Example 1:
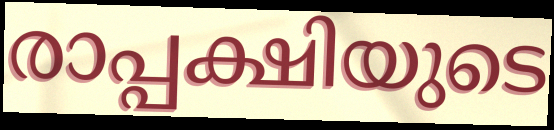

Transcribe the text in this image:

രാപ്പക്ഷിയുടെ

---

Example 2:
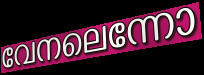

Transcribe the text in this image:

വേനലെന്നോ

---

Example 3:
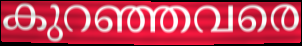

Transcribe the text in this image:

കുറഞ്ഞവരെ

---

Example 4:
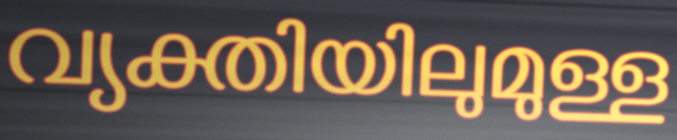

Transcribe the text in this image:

വ്യക്തിയിലുമുള്ള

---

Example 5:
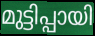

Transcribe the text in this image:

മുട്ടിപ്പായി